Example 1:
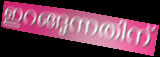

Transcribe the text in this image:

ഇറങ്ങുന്നതിന്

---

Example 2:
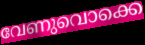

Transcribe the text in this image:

വേണുവൊക്കെ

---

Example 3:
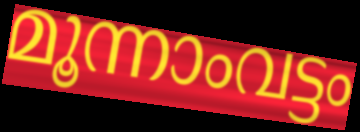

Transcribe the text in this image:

മൂന്നാംവട്ടം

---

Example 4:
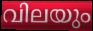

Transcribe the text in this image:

വിലയും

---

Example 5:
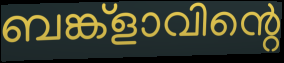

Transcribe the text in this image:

ബങ്ക്ളാവിന്റെ